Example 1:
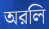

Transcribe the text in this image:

অরলি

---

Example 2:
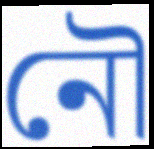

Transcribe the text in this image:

নৌ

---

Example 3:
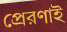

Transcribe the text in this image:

প্রেরণাই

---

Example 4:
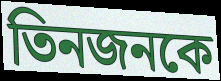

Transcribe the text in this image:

তিনজনকে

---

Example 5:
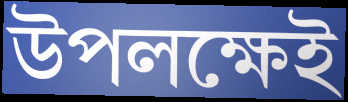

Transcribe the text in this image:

উপলক্ষেই